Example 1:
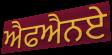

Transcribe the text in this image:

ਐਫਐਨਏ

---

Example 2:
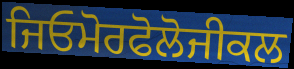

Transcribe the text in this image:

ਜਿਓਮੋਰਫੋਲੋਜੀਕਲ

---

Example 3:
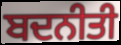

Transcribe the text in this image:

ਬਦਨੀਤੀ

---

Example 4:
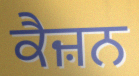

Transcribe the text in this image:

ਕੈਜ਼ਨ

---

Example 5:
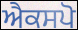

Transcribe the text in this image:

ਐਕਸਪੋ